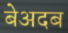
बेअदब